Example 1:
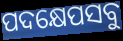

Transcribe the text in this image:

ପଦକ୍ଷେପସବୁ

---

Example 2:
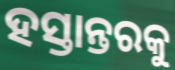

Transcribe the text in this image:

ହସ୍ତାନ୍ତରକୁ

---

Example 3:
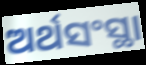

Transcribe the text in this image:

ଅର୍ଥସଂସ୍ଥା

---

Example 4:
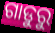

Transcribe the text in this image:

ଗାଡୁରୁ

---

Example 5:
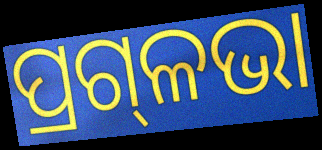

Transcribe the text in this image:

ପ୍ରଗ୍‌ଳଭା